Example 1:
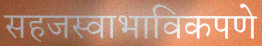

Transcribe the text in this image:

सहजस्वाभाविकपणे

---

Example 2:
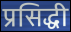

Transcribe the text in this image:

प्रसिद्धी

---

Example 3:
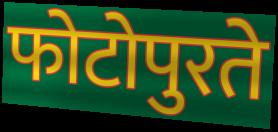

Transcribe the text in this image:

फोटोपुरते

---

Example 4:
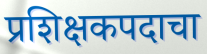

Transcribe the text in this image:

प्रशिक्षकपदाचा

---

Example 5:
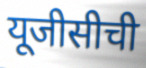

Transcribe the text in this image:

यूजीसीची